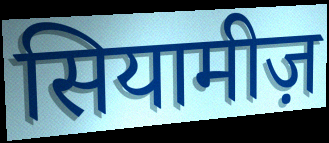
सियामीज़